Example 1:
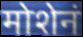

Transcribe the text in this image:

मोशेनं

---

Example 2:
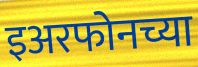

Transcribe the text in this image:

इअरफोनच्या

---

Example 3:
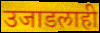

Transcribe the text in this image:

उजाडलाही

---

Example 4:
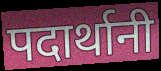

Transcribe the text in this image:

पदार्थानी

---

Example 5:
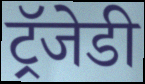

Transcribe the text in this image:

ट्रॅजेडी